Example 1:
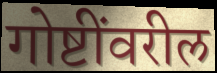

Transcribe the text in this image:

गोष्टींवरील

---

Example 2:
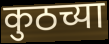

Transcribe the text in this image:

कुठच्या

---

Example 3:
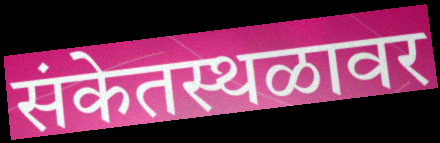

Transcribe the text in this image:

संकेतस्थळावर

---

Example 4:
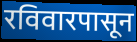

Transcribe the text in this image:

रविवारपासून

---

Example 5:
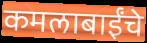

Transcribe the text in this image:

कमलाबाईंचे